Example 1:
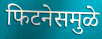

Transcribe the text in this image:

फिटनेसमुळे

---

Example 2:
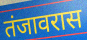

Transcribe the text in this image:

तंजावरास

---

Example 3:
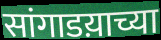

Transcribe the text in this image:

सांगाडय़ाच्या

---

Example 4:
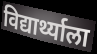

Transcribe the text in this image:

विद्यार्थ्याला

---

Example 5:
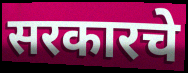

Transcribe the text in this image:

सरकारचे